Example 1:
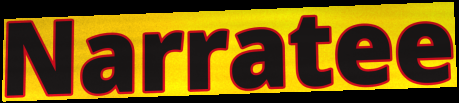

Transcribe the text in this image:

Narratee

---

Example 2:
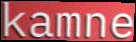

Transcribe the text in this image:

kamne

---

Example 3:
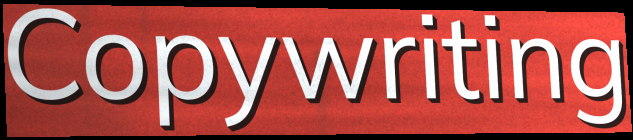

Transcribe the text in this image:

Copywriting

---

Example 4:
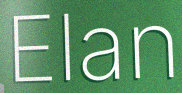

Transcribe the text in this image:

Elan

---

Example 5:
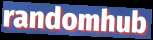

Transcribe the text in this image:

randomhub